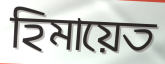
হিমায়েত